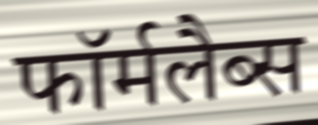
फॉर्मलैब्स